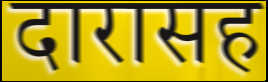
दारासह